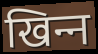
खिन्‍न